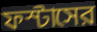
ফস্টাসের